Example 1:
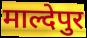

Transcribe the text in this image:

माल्देपुर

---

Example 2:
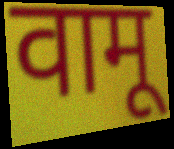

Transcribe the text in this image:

वामू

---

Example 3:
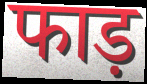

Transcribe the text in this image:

फाड़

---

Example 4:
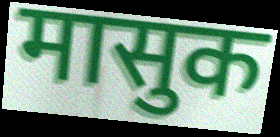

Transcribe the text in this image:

मासुक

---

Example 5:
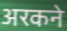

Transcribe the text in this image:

अरकने